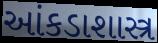
આંકડાશાસ્ત્ર